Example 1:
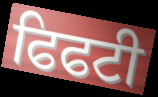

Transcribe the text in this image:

ਫਿਫਟੀ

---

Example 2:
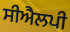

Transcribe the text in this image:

ਸੀਐਲਪੀ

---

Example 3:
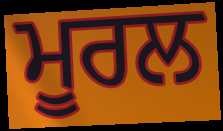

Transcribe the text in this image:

ਮੂਰਲ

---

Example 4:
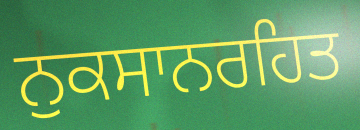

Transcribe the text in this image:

ਨੁਕਸਾਨਰਹਿਤ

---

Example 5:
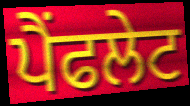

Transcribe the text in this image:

ਪੈਂਫਲੇਟ